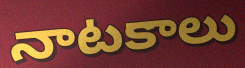
నాటకాలు